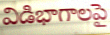
విడిభాగాలపై